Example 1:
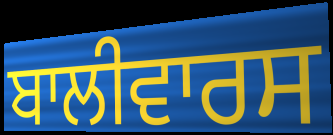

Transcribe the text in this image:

ਬਾਲੀਵਾਰਸ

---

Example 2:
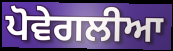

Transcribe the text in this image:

ਪੋਵੇਗਲੀਆ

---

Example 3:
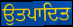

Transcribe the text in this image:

ਉਤਪਾਦਿਤ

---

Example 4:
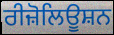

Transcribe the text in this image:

ਰੀਜ਼ੋਲਿਊਸ਼ਨ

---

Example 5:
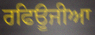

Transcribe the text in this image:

ਰਫਿਊਜੀਆ